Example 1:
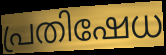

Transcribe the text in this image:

പ്രതിഷേധ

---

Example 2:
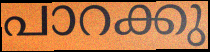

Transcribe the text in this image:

പാറക്കു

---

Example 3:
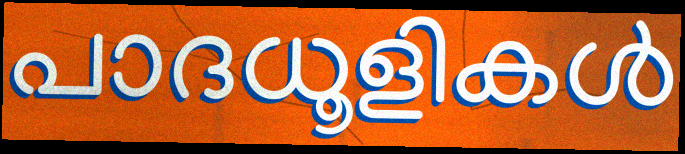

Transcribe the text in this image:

പാദധൂളികൾ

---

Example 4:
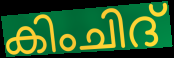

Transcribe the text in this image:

കിംചിദ്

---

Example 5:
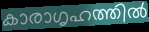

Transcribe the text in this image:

കാരാഗൃഹത്തിൽ